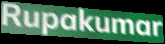
Rupakumar